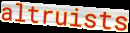
altruists